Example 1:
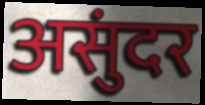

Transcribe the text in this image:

असुंदर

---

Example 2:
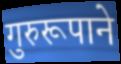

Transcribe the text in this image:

गुरुरूपाने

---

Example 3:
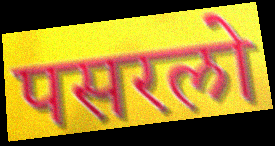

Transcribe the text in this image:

पसरलो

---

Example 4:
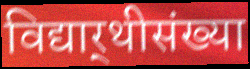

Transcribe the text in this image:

विद्यार्थीसंख्या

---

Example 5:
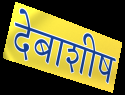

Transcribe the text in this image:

देबाशीष